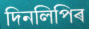
দিনলিপিৰ